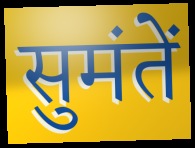
सुमंतें